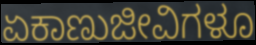
ಏಕಾಣುಜೀವಿಗಳೂ